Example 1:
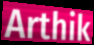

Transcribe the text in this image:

Arthik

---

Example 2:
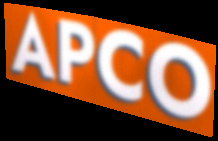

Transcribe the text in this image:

APCO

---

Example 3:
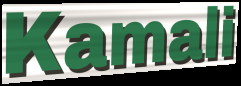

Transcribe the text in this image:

Kamali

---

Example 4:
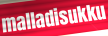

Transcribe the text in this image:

malladisukku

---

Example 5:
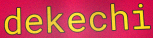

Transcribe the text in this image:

dekechi